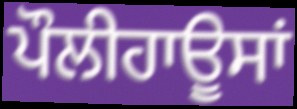
ਪੌਲੀਹਾਊਸਾਂ